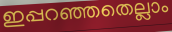
ഇപ്പറഞ്ഞതെല്ലാം